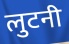
लुटनी